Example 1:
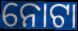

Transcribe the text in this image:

ନୋଟା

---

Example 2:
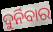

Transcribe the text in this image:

ଦୁର୍ନିବାର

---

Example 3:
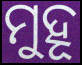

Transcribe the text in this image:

ମୁହୂ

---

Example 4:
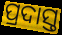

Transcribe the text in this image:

ପ୍ରଦାସ୍ତ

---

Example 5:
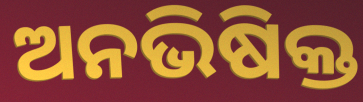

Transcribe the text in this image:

ଅନଭିଷିକ୍ତ